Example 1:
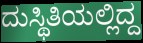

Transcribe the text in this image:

ದುಸ್ಥಿತಿಯಲ್ಲಿದ್ದ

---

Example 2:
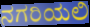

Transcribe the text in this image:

ನಗರಿಯಲಿ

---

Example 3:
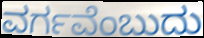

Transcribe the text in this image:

ವರ್ಗವೆಂಬುದು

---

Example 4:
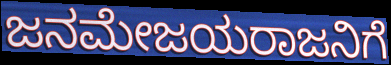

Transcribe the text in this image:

ಜನಮೇಜಯರಾಜನಿಗೆ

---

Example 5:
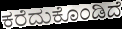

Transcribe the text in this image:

ಕರೆದುಕೊಂಡಿದೆ